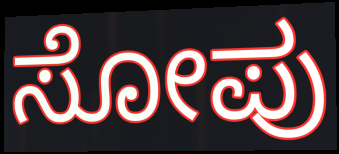
ಸೋಪು